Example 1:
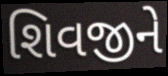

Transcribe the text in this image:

શિવજીને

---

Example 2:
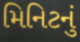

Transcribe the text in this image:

મિનિટનું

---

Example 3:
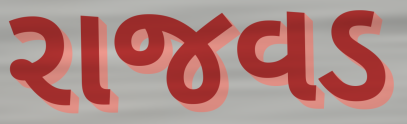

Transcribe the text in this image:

રાજવડ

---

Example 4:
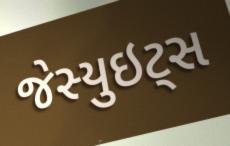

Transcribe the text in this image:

જેસ્યુઇટ્સ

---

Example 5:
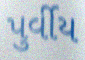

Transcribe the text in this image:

પુર્વીય